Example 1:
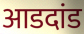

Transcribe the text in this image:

आडदांड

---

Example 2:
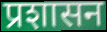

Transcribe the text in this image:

प्रशासन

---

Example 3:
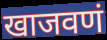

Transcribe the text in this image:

खाजवणं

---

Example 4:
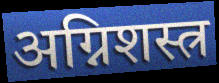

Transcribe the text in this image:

अग्निशस्त्र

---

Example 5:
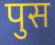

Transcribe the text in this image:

पुस